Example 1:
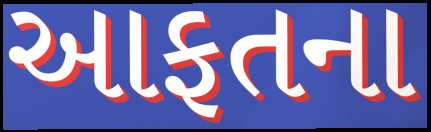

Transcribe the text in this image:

આફતના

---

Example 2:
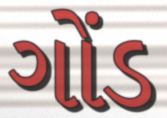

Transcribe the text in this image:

ગોંડ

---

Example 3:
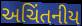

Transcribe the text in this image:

અચિંતનીય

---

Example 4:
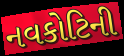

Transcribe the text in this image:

નવકોટિની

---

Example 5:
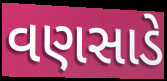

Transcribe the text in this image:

વણસાડે